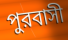
পুরবাসী